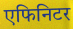
एफिनिटर